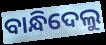
ବାନ୍ଧିଦେଲୁ